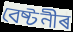
বেষ্টনীৰ